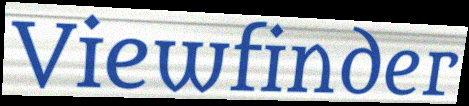
Viewfinder